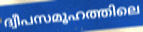
ദ്വീപസമൂഹത്തിലെ